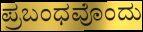
ಪ್ರಬಂಧವೊಂದು